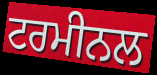
ਟਰਮੀਨਲ